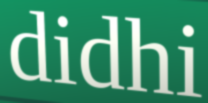
didhi